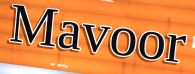
Mavoor